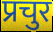
प्रचुर